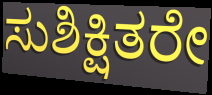
ಸುಶಿಕ್ಷಿತರೇ